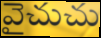
వైచుచు